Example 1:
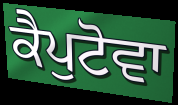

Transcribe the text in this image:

ਕੈਪੁਟੋਵਾ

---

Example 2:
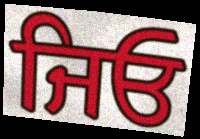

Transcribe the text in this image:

ਜਿਓ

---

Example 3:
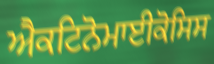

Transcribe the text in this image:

ਐਕਟਿਨੋਮਾਈਕੋਸਿਸ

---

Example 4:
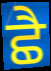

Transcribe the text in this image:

ਛੈ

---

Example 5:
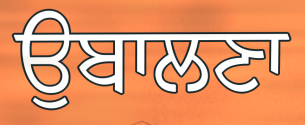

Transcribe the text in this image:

ਉਬਾਲਣਾ